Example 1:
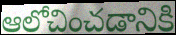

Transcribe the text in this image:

ఆలోచించడానికి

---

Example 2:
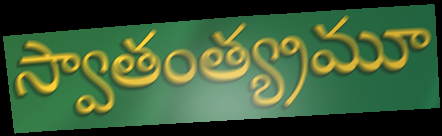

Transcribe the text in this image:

స్వాతంత్య్రమూ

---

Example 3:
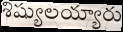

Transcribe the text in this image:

శిష్యులయ్యారు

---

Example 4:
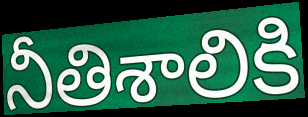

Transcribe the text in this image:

నీతిశాలికి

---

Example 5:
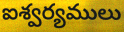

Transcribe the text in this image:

ఐశ్వర్యములు